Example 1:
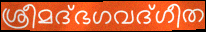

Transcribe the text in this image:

ശ്രീമദ്ഭഗവദ്ഗീത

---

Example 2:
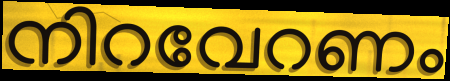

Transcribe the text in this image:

നിറവേറണം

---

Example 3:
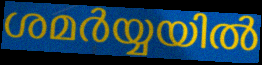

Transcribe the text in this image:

ശമർയ്യയിൽ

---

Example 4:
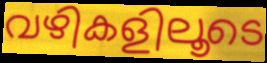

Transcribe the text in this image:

വഴികളിലൂടെ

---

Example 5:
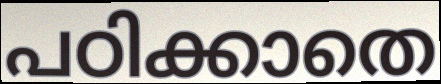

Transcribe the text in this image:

പഠിക്കാതെ